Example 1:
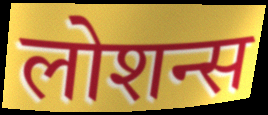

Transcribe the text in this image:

लोशन्स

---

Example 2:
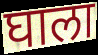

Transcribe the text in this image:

घाला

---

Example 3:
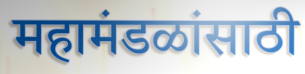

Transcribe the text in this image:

महामंडळांसाठी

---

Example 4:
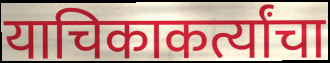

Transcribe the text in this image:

याचिकाकर्त्यांचा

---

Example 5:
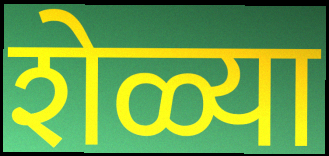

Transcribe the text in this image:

शेळ्या